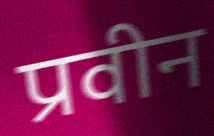
प्रवीन